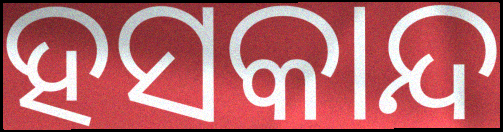
ହସକାନ୍ଦ